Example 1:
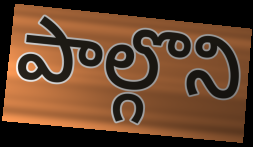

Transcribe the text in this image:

పాల్గొని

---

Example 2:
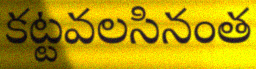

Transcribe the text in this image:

కట్టవలసినంత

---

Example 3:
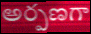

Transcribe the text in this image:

అర్పణగా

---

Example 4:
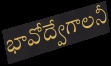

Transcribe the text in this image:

భావోద్వేగాలనీ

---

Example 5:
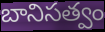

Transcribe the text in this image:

బానిసత్వం